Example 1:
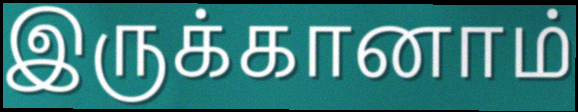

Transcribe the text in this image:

இருக்கானாம்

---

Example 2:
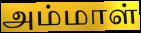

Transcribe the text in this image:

அம்மாள்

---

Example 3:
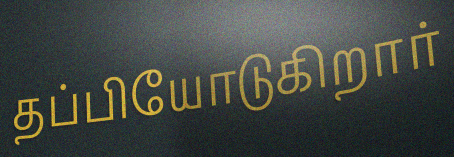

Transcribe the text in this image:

தப்பியோடுகிறார்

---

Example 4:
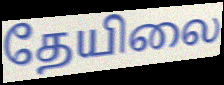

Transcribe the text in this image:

தேயிலை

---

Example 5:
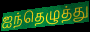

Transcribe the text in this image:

ஐந்தெழுத்து